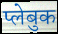
प्लेबुक